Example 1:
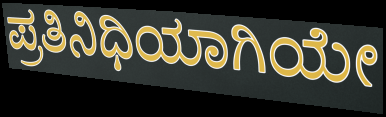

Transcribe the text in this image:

ಪ್ರತಿನಿಧಿಯಾಗಿಯೇ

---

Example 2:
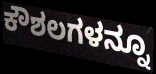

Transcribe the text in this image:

ಕೌಶಲಗಳನ್ನೂ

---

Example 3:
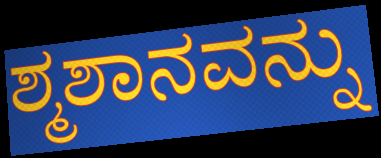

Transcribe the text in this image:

ಶ್ಮಶಾನವನ್ನು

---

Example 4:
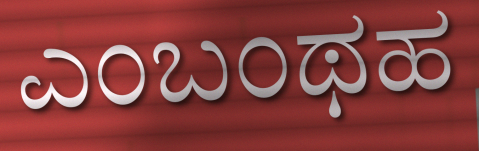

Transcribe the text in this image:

ಎಂಬಂಥಹ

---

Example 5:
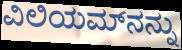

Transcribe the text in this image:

ವಿಲಿಯಮ್‌ನನ್ನು